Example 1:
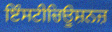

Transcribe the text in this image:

ਇੰਸਟੀਚਿਊਸ਼ਨਜ਼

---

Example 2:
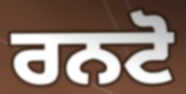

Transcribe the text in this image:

ਰਨਟੋ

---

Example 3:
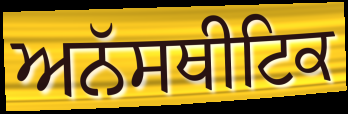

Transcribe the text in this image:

ਅਨੱਸਥੀਟਿਕ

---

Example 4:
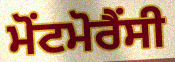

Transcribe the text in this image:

ਮੋਂਟਮੋਰੈਂਸੀ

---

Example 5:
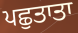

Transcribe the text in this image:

ਪਛੁਤਾਤਾ